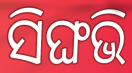
ସିଙ୍ଘଭି